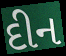
દીન